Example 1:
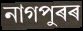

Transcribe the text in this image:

নাগপুৰৰ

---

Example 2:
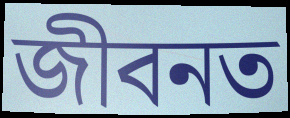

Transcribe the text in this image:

জীবনত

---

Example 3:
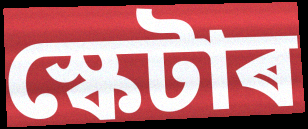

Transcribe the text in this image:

স্কেটাৰ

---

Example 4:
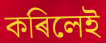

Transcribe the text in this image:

কৰিলেই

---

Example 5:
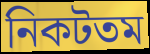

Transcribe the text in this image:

নিকটতম